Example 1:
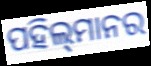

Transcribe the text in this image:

ପହିଲ୍‌ମାନର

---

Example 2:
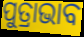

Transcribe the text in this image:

ପୁତ୍ରାଭାବ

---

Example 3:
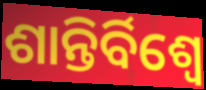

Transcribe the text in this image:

ଶାନ୍ତିର୍ବିଶ୍ୱେ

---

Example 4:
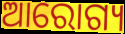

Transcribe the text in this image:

ଆରୋଗ୍ଯ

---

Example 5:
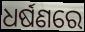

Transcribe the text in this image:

ଧର୍ଷଣରେ